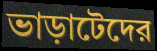
ভাড়াটেদের